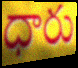
ధారు